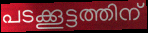
പടക്കൂട്ടത്തിന്